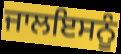
ਜਾਲਇਸਨੂੰ